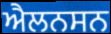
ਐਲਨਸਨ